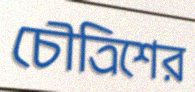
চৌত্রিশের